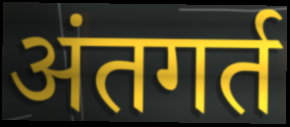
अंतगर्त